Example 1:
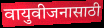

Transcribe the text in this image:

वायुवीजनासाठी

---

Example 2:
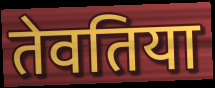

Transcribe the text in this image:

तेवतिया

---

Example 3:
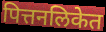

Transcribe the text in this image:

पित्तनलिकेत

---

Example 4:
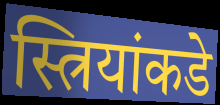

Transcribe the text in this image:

स्त्रियांकडे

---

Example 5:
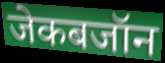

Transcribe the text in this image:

जेकबजॉन